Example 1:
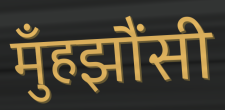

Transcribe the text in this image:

मुँहझौंसी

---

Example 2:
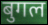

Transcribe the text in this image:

बुगल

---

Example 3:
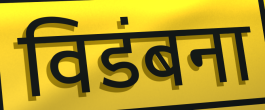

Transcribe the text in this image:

विडंबना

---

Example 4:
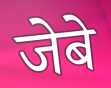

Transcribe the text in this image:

जेबे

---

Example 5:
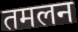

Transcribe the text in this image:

तमलन